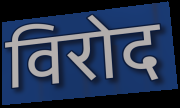
विरोद